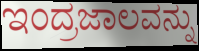
ಇಂದ್ರಜಾಲವನ್ನು